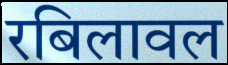
रबिलावल